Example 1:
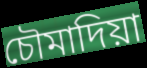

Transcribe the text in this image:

চৌমাদিয়া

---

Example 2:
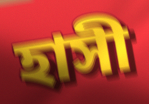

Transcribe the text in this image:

হাসী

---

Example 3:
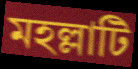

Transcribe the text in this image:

মহল্লাটি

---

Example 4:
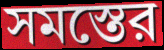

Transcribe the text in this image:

সমস্তের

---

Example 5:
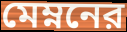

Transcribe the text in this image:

মেম্ননের